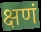
क्षणं